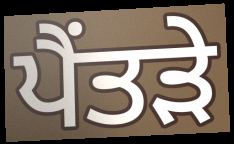
ਪੈਂਤੜੇ